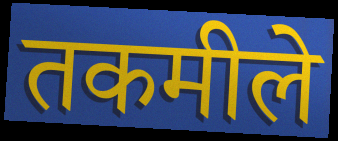
तकमीले